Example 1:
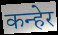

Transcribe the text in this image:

कन्हेर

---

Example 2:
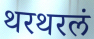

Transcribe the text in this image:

थरथरलं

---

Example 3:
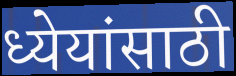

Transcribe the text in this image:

ध्येयांसाठी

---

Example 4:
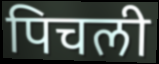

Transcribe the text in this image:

पिचली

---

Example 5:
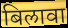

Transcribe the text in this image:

बिलावा